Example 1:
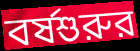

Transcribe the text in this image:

বর্ষশুরুর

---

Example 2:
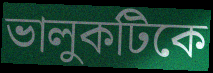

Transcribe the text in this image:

ভালুকটিকে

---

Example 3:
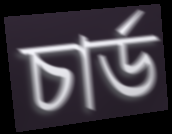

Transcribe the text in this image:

চার্ড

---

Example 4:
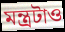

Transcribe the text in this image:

মন্ত্রটাও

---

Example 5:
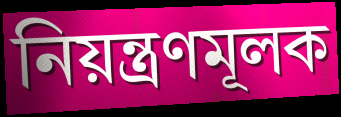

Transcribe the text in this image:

নিয়ন্ত্রণমূলক